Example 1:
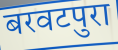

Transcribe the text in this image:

बरवटपुरा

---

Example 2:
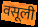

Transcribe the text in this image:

वसूली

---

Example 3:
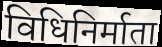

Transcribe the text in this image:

विधिनिर्माता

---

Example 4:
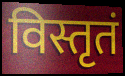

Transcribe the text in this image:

विस्तृतं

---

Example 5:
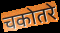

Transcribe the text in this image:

चकोतरे